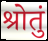
श्रोतुं